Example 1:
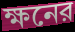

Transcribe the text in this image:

ক্ষনের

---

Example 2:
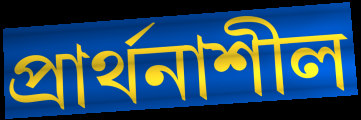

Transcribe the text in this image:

প্রার্থনাশীল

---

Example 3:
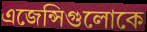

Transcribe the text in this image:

এজেন্সিগুলোকে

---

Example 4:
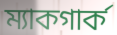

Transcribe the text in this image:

ম্যাকগার্ক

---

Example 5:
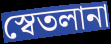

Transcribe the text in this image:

স্বেতলানা